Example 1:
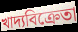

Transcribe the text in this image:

খাদ্যবিক্রেতা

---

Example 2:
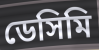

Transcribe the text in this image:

ডেসিমি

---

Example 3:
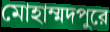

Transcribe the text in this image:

মোহাম্মদপুরে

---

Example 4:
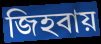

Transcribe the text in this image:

জিহবায়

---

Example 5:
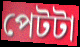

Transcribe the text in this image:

পেটটা